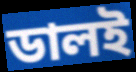
ডালই